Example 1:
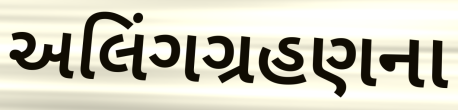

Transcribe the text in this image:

અલિંગગ્રહણના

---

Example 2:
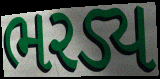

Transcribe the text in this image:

ભરડ્ય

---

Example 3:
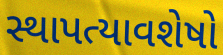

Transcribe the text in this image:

સ્થાપત્યાવશેષો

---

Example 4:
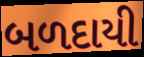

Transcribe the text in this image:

બળદાયી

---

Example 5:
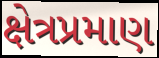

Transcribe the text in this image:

ક્ષેત્રપ્રમાણ